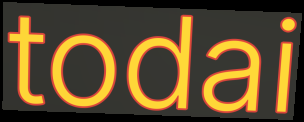
todai